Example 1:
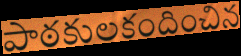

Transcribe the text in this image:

పాఠకులకందించిన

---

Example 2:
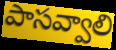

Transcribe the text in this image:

పాసవ్వాలి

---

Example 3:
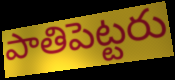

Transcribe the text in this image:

పాతిపెట్టరు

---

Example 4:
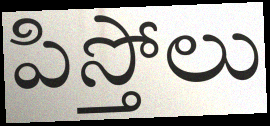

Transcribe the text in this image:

పిస్తోలు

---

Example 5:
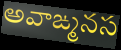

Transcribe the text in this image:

అవాఙ్మనస